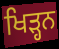
ਖਿੜ੍ਹਨ